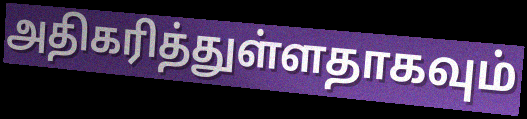
அதிகரித்துள்ளதாகவும்